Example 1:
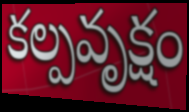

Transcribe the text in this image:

కల్పవృక్షం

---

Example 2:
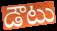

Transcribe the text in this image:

డౌటు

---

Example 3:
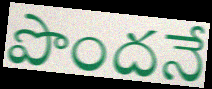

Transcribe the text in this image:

పొందనే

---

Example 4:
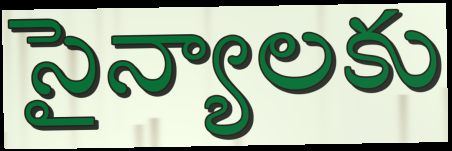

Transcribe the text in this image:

సైన్యాలకు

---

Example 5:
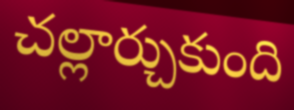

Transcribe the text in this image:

చల్లార్చుకుంది